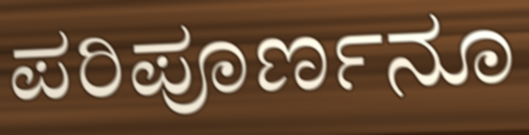
ಪರಿಪೂರ್ಣನೂ